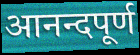
आनन्दपूर्ण